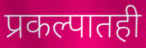
प्रकल्पातही